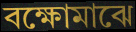
বক্ষোমাঝে